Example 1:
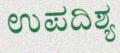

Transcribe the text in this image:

ಉಪದಿಶ್ಯ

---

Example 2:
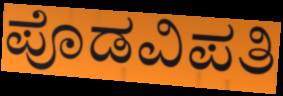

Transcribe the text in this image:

ಪೊಡವಿಪತಿ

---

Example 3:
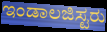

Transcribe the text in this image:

ಇಂಡಾಲಜಿಸ್ಟರು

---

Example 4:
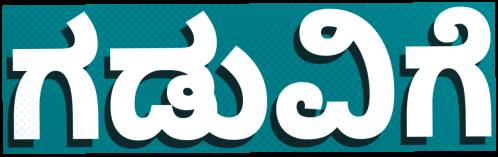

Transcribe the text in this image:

ಗಡುವಿಗೆ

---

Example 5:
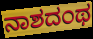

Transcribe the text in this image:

ನಾಶದಂಥ